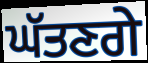
ਘੱਤਣਗੇ